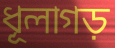
ধূলাগড়